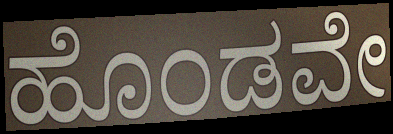
ಹೊಂಡವೇ